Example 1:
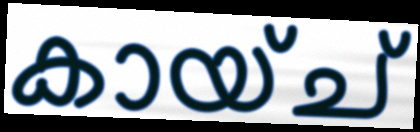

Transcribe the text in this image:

കായ്ച്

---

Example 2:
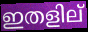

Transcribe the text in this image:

ഇതളില്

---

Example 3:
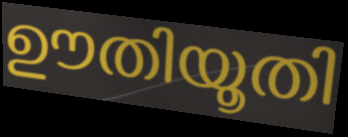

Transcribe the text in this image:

ഊതിയൂതി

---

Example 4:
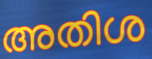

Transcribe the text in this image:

അതിശ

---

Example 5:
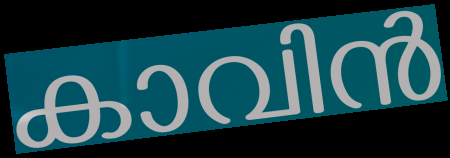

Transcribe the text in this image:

കാവിൻ